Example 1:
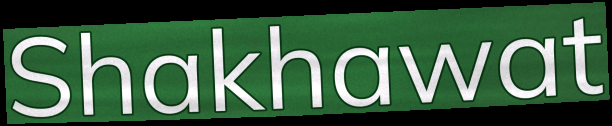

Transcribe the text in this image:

Shakhawat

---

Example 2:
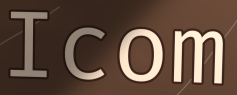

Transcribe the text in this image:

Icom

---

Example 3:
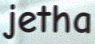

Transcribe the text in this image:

jetha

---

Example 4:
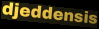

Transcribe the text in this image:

djeddensis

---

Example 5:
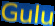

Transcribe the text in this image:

Gulu